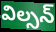
విల్సన్